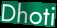
Dhoti